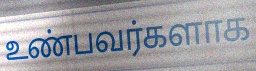
உண்பவர்களாக